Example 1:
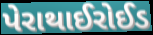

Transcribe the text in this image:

પેરાથાઈરોઈડ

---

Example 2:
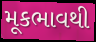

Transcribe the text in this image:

મૂકભાવથી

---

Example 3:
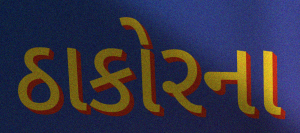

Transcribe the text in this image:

ઠાકોરના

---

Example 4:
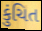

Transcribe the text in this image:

કુંચિત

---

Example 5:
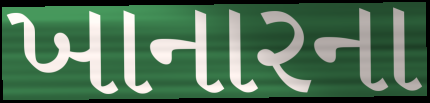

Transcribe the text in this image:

ખાનારના